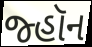
જ્હૉન